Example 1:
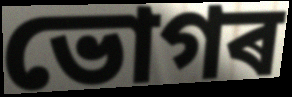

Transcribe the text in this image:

ভোগৰ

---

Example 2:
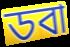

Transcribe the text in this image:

ডবা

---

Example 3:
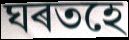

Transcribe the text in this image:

ঘৰতহে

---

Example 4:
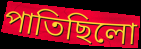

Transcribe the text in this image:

পাতিছিলো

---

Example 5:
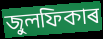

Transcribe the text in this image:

জুলফিকাৰ